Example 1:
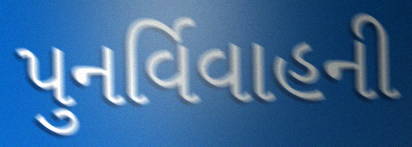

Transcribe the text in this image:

પુનર્વિવાહની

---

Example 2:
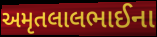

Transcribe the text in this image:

અમૃતલાલભાઈના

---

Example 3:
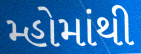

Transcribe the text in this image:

મ્હોમાંથી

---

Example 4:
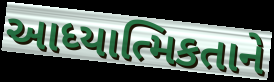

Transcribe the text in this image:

આધ્યાત્મિકતાને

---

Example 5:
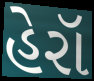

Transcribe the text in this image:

હેરૉ